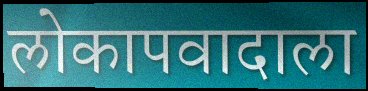
लोकापवादाला